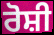
ਰੋਸ਼ੀ